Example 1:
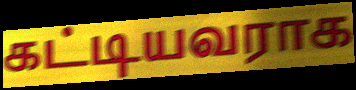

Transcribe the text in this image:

கட்டியவராக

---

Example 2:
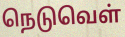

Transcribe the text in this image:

நெடுவெள்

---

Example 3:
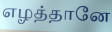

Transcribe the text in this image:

எழத்தானே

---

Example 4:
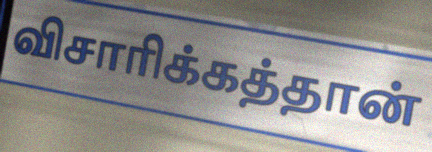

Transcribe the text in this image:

விசாரிக்கத்தான்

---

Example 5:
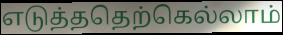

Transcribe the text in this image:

எடுத்ததெற்கெல்லாம்